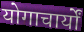
योगाचार्यों